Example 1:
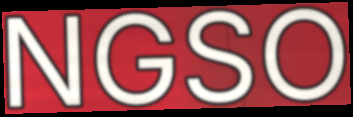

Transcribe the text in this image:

NGSO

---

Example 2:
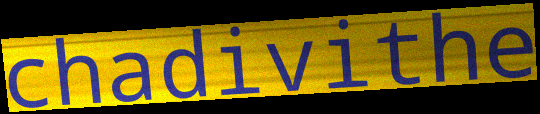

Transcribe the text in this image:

chadivithe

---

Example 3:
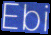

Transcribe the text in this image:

Ebi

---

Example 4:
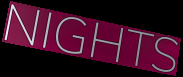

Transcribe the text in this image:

NIGHTS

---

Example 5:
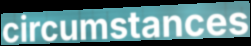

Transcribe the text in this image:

circumstances